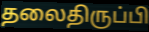
தலைதிருப்பி